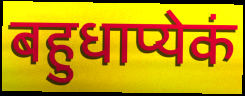
बहुधाप्येकं